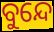
ବୁନ୍ଦେ